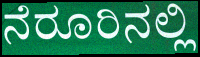
ನೆರೂರಿನಲ್ಲಿ